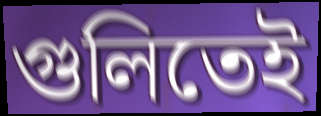
গুলিতেই